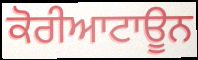
ਕੋਰੀਆਟਾਊਨ